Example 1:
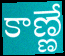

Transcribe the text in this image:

కాణ్ణే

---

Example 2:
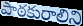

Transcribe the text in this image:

పాఠకురాలిని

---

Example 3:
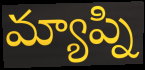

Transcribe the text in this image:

మ్యాప్ని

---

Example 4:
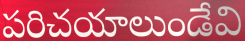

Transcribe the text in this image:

పరిచయాలుండేవి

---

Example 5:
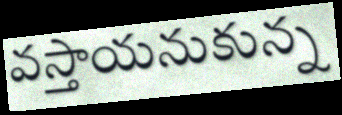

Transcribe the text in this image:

వస్తాయనుకున్న